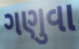
ગણુવા